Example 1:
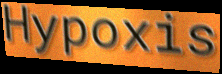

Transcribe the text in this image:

Hypoxis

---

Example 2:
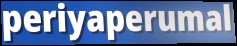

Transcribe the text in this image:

periyaperumal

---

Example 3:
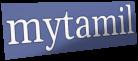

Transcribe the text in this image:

mytamil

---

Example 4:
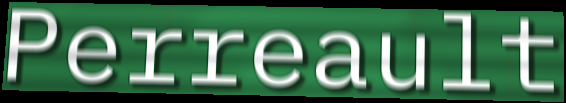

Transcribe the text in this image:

Perreault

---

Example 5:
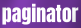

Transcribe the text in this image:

paginator